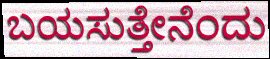
ಬಯಸುತ್ತೇನೆಂದು